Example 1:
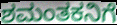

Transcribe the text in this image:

ಶಮಂತಕನಿಗೆ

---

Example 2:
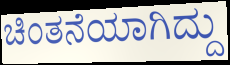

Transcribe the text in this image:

ಚಿಂತನೆಯಾಗಿದ್ದು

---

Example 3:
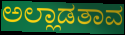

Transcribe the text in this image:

ಅಲ್ಲಾಡತಾವ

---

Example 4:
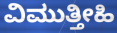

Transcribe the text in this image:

ವಿಮುತ್ತೀಹಿ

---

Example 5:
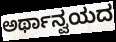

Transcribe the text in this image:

ಅರ್ಥಾನ್ವಯದ